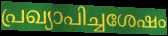
പ്രഖ്യാപിച്ചശേഷം